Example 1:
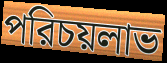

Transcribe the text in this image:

পরিচয়লাভ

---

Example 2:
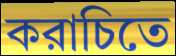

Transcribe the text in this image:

করাচিতে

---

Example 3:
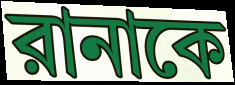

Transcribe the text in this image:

রানাকে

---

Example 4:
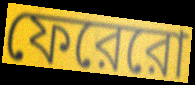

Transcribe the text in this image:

ফেরেরো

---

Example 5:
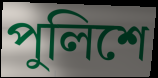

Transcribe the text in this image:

পুলিশে